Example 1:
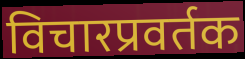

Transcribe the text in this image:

विचारप्रवर्तक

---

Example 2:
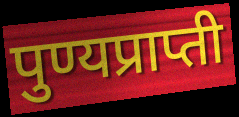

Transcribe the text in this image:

पुण्यप्राप्ती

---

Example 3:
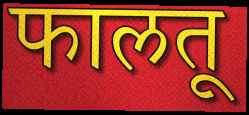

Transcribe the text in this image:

फालतू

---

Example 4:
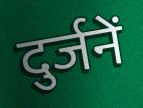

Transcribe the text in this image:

दुर्जनें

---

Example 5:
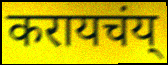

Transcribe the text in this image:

करायचंय्